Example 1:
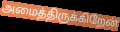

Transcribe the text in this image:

அமைத்திருக்கிறேன்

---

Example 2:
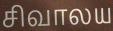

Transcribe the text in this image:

சிவாலய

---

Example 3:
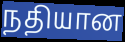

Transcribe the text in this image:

நதியான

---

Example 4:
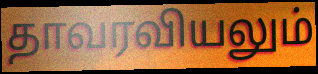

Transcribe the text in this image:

தாவரவியலும்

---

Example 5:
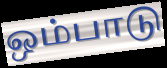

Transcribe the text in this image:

ஒம்பாடு